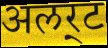
अलर्ट